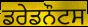
ਡਰੇਡਨੌਟਸ